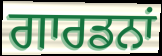
ਗਾਰਡਨਾਂ